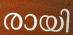
രായി